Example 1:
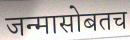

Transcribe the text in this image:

जन्मासोबतच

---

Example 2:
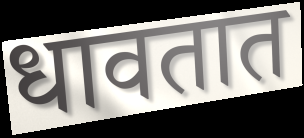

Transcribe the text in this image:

धावतात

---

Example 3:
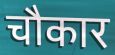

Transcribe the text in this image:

चौकार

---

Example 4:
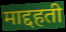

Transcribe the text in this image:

माद्दहती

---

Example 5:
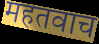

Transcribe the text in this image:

महतवाच